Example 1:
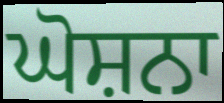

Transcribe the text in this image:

ਘੋਸ਼ਨਾ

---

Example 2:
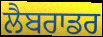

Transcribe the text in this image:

ਲੈਬਰਾਡਰ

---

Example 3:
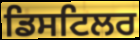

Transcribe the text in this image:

ਡਿਸਟਿਲਰ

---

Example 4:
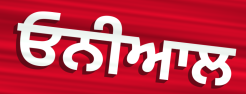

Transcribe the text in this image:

ਓਨੀਆਲ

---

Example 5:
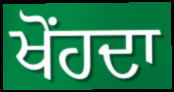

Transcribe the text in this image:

ਖੋਂਹਦਾ